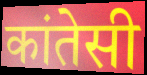
कांतेसी